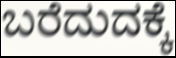
ಬರೆದುದಕ್ಕೆ